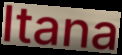
Itana